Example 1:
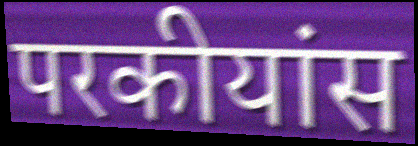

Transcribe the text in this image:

परकीयांस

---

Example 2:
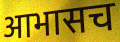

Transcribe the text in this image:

आभासच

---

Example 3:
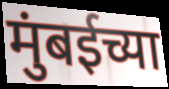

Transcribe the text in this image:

मुंबईच्या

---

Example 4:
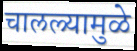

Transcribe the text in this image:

चालल्यामुळे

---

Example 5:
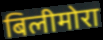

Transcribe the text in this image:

बिलीमोरा